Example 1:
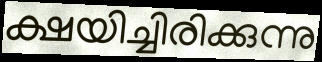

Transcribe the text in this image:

ക്ഷയിച്ചിരിക്കുന്നു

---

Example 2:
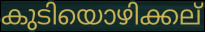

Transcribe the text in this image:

കുടിയൊഴിക്കല്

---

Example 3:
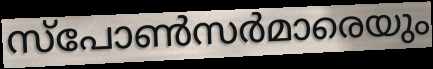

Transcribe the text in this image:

സ്പോൺസർമാരെയും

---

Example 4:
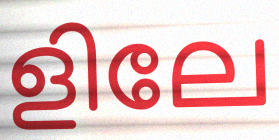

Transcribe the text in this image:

ളിലേ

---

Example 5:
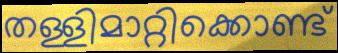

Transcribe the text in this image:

തള്ളിമാറ്റിക്കൊണ്ട്